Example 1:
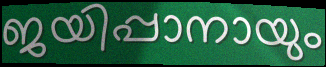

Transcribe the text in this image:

ജയിപ്പാനായും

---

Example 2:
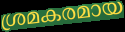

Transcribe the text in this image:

ശ്രമകരമായ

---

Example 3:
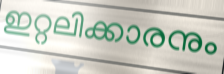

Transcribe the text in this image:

ഇറ്റലിക്കാരനും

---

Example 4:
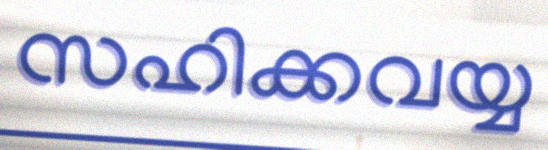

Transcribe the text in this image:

സഹിക്കവയ്യ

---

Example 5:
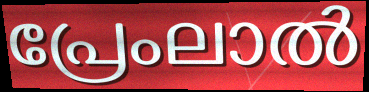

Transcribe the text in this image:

പ്രേംലാൽ